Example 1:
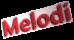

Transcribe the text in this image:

Melodi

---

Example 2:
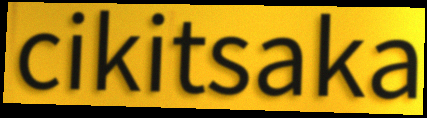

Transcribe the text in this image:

cikitsaka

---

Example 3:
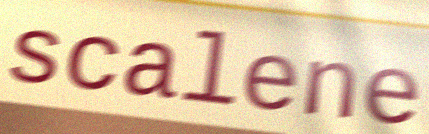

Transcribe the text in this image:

scalene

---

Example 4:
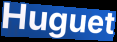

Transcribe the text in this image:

Huguet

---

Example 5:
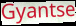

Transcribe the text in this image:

Gyantse